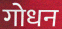
गोधन